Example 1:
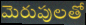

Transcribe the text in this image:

మెరుపులతో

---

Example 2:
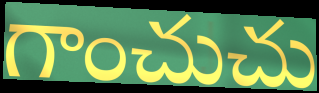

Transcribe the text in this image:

గాంచుచు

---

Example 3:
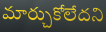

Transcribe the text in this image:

మార్చుకోలేదని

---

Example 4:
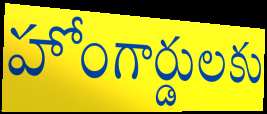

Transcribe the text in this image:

హోంగార్డులకు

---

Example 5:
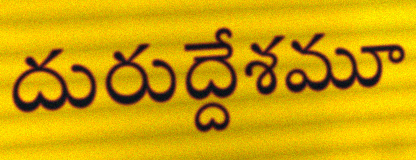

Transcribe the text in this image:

దురుద్దేశమూ